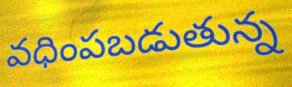
వధింపబడుతున్న